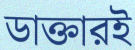
ডাক্তারই